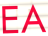
EA